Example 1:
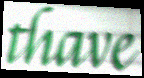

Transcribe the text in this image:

thave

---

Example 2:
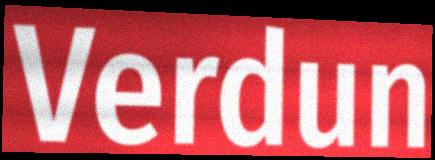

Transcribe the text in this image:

Verdun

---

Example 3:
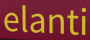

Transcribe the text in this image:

elanti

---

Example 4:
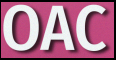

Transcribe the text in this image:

OAC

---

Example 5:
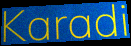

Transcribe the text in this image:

Karadi